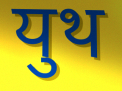
युथ